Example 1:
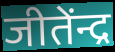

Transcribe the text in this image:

जीतेंन्द्र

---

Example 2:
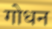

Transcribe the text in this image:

गोधन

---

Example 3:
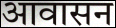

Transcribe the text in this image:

आवासन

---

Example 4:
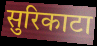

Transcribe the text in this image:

सुरिकाटा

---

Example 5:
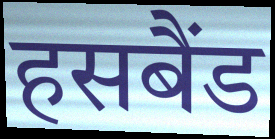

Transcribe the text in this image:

हसबैंड